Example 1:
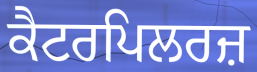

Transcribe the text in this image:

ਕੈਟਰਪਿਲਰਜ਼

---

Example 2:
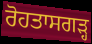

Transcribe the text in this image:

ਰੋਹਤਾਸਗੜ੍ਹ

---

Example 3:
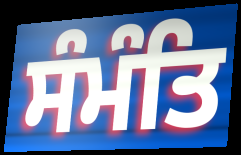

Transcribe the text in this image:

ਸੰਮੰਤਿ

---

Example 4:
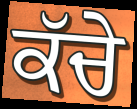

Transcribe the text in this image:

ਕੱਚੇ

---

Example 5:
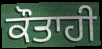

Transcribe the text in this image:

ਕੌਤਾਹੀ